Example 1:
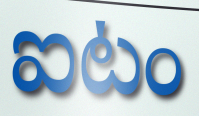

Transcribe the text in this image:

ఐటం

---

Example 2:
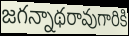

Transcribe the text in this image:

జగన్నాథరావుగారికి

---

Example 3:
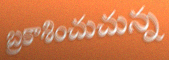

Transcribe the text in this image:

బ్రకాశించుచున్న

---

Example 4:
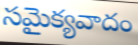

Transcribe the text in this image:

సమైక్యవాదం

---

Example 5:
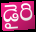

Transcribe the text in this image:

డైరి